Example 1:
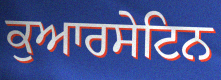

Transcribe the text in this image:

ਕੁਆਰਸੇਟਿਨ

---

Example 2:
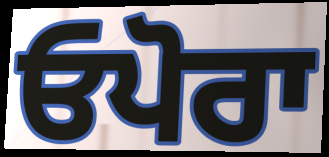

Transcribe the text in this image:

ਓਪੋਰਾ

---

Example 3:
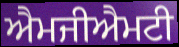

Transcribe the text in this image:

ਐਮਜੀਐਮਟੀ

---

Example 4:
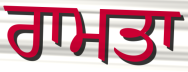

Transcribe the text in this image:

ਰਾਮਤਾ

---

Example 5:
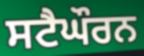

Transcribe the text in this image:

ਸਟੈਘੌਰਨ